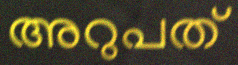
അറുപത്